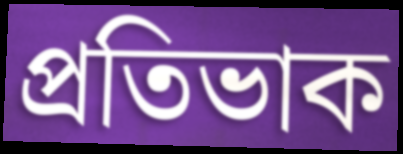
প্ৰতিভাক